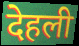
देहली